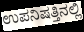
ಉಪನಿಷತ್ತಿನಲ್ಲಿ